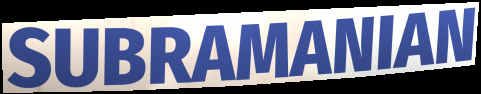
SUBRAMANIAN